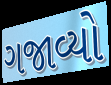
ગજાવ્યો